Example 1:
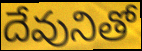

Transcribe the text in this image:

దేవునితో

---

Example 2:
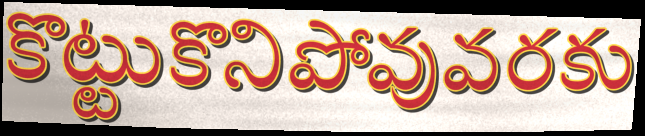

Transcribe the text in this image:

కొట్టుకొనిపోవువరకు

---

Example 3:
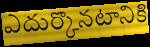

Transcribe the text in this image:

ఎదుర్కొనటానికి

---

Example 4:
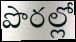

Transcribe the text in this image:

పొరల్లో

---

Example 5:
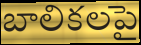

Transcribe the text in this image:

బాలికలపై